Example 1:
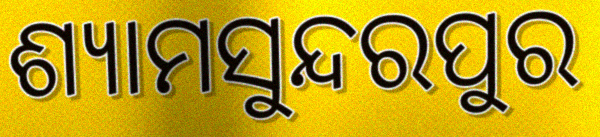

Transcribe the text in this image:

ଶ୍ୟାମସୁନ୍ଦରପୁର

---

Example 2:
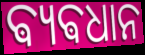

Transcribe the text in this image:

ଵ୍ୟଵଧାନ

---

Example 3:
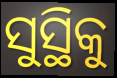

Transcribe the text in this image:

ସୁସ୍ଥିକୁ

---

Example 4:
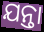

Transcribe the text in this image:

ଯନ୍ତା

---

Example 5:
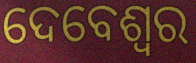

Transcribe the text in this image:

ଦେବେଶ୍ୱର